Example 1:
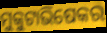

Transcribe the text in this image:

ମୁକୁଟାଭିଷେକର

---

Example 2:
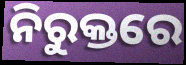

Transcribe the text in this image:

ନିରୁକ୍ତରେ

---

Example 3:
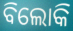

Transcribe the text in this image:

ବିଲୋକି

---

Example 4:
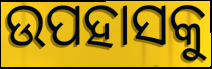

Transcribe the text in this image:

ଉପହାସକୁ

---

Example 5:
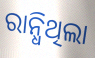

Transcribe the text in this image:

ରାନ୍ଧିଥିଲା